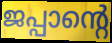
ജപ്പാന്റെ